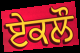
ਏਕਲੌ